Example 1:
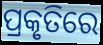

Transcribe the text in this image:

ପ୍ରକୃତିରେ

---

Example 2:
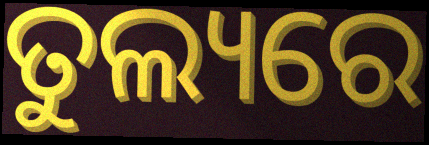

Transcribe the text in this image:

ତୁଲ୍ୟରେ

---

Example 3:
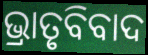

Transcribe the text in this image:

ଭ୍ରାତୃବିବାଦ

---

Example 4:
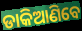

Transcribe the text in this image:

ଡାକିଆଣିବେ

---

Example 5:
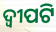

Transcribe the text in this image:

ଦ୍ୱୀପଟି